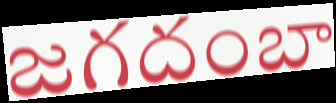
జగదంబా